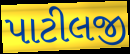
પાટીલજી